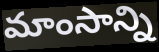
మాంసాన్ని